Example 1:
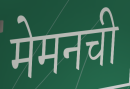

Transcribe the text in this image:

मेमनची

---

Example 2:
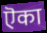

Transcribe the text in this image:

ऎका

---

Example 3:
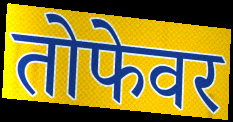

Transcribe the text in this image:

तोफेवर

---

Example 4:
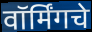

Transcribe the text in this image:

वॉर्मिंगचे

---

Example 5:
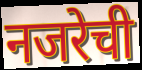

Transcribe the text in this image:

नजरेची